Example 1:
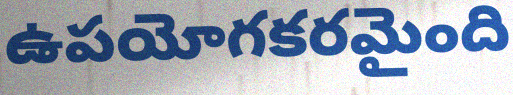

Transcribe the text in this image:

ఉపయోగకరమైంది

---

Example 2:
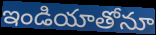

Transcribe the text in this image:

ఇండియాతోనూ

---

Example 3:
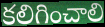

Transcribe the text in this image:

కలిగించాలి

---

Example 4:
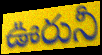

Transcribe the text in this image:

ఊరునీ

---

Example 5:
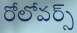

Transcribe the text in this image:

రోలోవర్స్